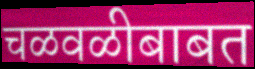
चळवळीबाबत